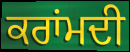
ਕਰਾਂਮਦੀ